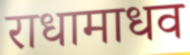
राधामाधव